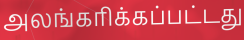
அலங்கரிக்கப்பட்டது